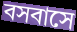
বসবাসে